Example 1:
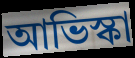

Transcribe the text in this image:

আভিস্কা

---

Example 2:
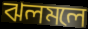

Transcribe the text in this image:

ঝলমলে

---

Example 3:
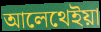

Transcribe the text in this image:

আলেথেইয়া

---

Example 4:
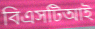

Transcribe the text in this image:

বিএসটিআই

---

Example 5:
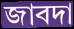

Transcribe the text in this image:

জাবদা